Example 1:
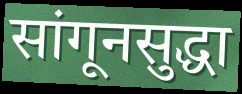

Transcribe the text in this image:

सांगूनसुद्धा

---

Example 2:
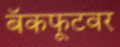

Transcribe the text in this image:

बॅकफूटवर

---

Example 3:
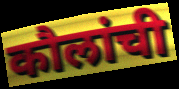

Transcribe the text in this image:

कौलांची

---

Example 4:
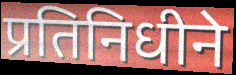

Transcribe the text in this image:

प्रतिनिधीने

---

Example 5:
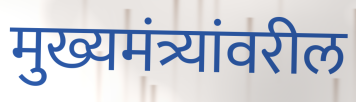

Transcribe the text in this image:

मुख्यमंत्र्यांवरील